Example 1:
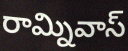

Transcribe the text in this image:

రామ్నివాస్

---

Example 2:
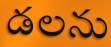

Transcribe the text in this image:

డలను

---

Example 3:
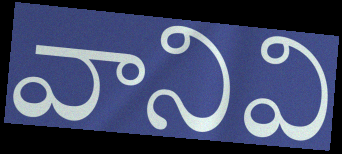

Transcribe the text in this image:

వానివి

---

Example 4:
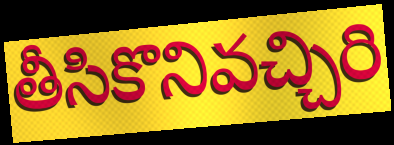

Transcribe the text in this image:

తీసికొనివచ్చిరి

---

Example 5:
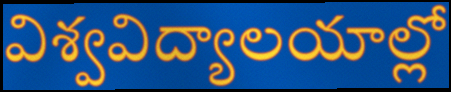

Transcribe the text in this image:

విశ్వవిద్యాలయాల్లో